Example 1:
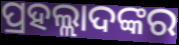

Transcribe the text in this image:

ପ୍ରହଲ୍ଲାଦଙ୍କର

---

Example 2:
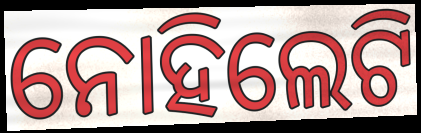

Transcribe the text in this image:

ନୋହିଲେଟି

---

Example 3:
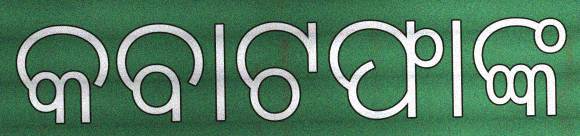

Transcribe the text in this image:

କବାଟଫାଙ୍କ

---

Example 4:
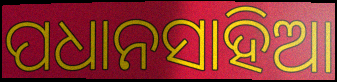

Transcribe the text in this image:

ପଧାନସାହିଆ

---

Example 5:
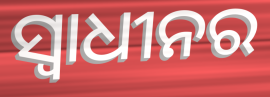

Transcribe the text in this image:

ସ୍ୱାଧୀନର